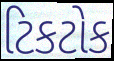
ટિકટોક